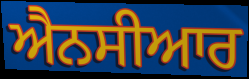
ਐਨਸੀਆਰ